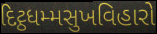
દિટ્ઠધમ્મસુખવિહારો